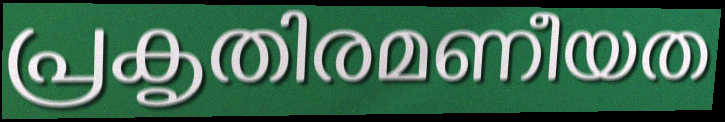
പ്രകൃതിരമണീയത